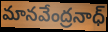
మానవేంద్రనాధ్